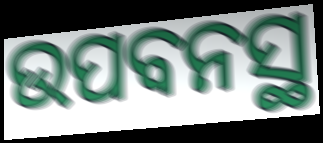
ଉପବନସ୍ଥ